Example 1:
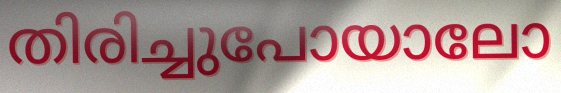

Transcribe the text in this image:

തിരിച്ചുപോയാലോ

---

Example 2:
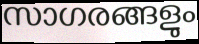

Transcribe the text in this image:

സാഗരങ്ങളും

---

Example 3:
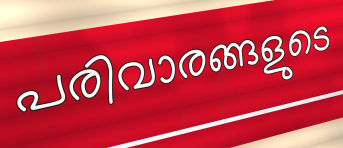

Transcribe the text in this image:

പരിവാരങ്ങളുടെ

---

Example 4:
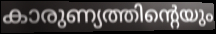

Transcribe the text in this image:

കാരുണ്യത്തിന്റെയും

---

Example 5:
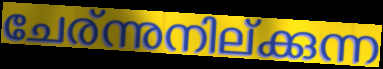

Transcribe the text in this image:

ചേര്ന്നുനില്ക്കുന്ന